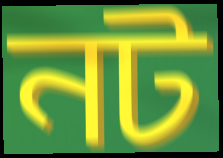
নট